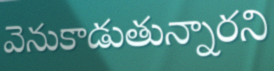
వెనుకాడుతున్నారని